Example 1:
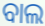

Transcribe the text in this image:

ବାଲ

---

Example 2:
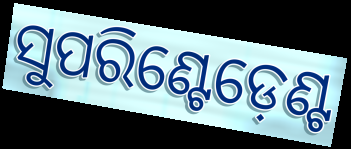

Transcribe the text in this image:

ସୁପରିଣ୍ଟେଡ଼େଣ୍ଟ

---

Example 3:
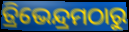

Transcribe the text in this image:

ତ୍ରିଭେନ୍ଦ୍ରମଠାରୁ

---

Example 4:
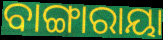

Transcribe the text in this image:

ବାଙ୍ଗାରାୟା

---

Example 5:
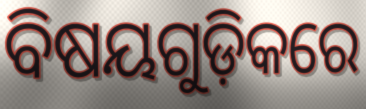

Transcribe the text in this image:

ବିଷୟଗୁଡ଼ିକରେ